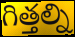
గిత్తల్ని